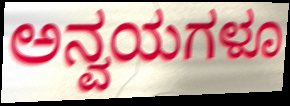
ಅನ್ವಯಗಳೂ